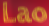
Lao